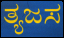
ತ್ಯಜಸ